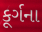
કૂર્ગના